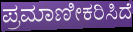
ಪ್ರಮಾಣೀಕರಿಸಿದೆ